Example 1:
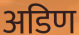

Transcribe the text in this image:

अडिण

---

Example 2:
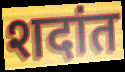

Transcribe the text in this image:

शदांत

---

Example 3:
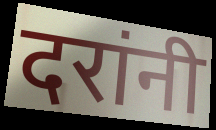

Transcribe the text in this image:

दरांनी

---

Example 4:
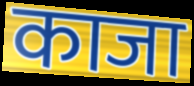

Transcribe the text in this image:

काजा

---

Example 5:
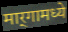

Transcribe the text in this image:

मार्गामध्ये